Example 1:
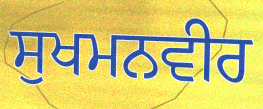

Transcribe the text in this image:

ਸੁਖਮਨਵੀਰ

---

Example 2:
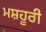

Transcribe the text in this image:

ਮਸ਼ਹੂਰੀ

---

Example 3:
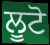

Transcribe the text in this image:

ਲੂਟੋ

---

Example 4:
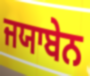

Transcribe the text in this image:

ਜਯਾਬੇਨ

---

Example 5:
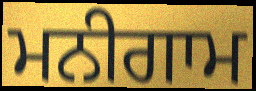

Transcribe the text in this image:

ਮਨੀਗਾਮ